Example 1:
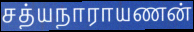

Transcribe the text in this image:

சத்யநாராயணன்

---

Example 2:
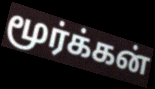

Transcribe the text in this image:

மூர்க்கன்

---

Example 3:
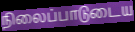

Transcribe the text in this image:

நிலைப்பாடுடைய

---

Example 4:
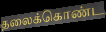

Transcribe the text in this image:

தலைக்கொண்ட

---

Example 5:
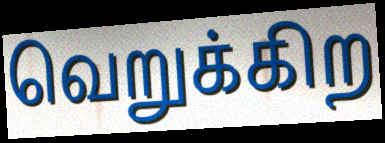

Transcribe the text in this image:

வெறுக்கிற